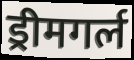
ड्रीमगर्ल